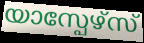
യാസ്പേഴ്സ്